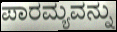
ಪಾರಮ್ಯವನ್ನು